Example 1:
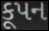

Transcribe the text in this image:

કૂપન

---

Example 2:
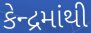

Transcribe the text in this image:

કેન્દ્રમાંથી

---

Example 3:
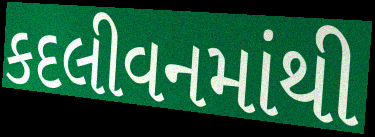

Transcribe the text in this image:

કદલીવનમાંથી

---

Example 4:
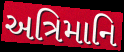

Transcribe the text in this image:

અત્રિમાનિ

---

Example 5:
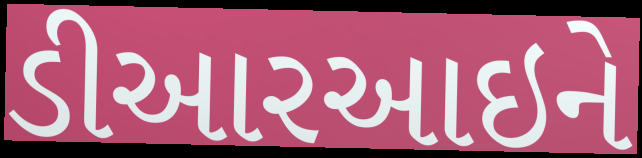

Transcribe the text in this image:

ડીઆરઆઇને